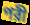
পরী